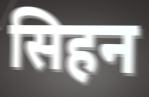
सिहन